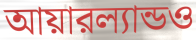
আয়ারল্যান্ডও